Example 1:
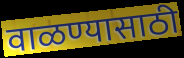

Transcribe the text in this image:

वाळण्यासाठी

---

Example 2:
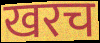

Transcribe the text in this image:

खरच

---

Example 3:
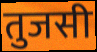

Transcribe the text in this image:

तुजसी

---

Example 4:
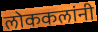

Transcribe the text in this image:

लोककलांनी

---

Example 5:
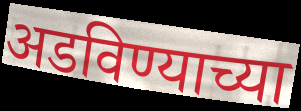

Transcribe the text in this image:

अडविण्याच्या